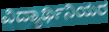
ವಿದ್ಯಾರ್ಥಿನಿಯರ